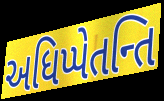
અધિપ્પેતન્તિ